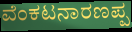
ವೆಂಕಟನಾರಣಪ್ಪ